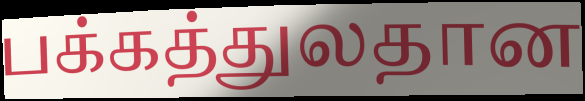
பக்கத்துலதான